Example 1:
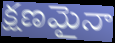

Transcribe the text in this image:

క్షణమైనా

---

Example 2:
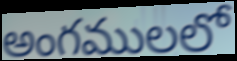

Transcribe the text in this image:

అంగములలో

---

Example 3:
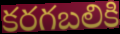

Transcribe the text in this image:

కరగబలికి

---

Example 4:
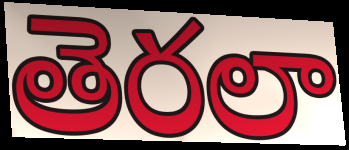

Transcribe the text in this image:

తెరలా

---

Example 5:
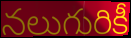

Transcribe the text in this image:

నలుగురికీ